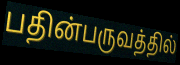
பதின்பருவத்தில்